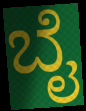
ಬೈ